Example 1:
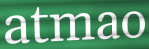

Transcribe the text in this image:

atmao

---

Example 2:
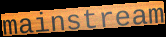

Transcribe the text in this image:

mainstream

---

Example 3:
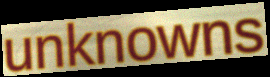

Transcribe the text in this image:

unknowns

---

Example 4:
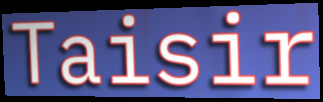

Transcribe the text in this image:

Taisir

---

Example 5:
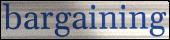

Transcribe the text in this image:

bargaining